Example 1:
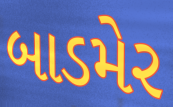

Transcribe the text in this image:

બાડમેર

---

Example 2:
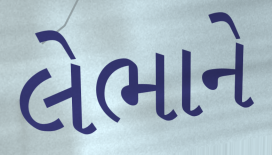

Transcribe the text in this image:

લેભાને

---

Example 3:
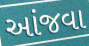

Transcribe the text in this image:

આંજવા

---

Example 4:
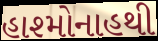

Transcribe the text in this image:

હાશ્મોનાહથી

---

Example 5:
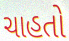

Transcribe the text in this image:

ચાહતો